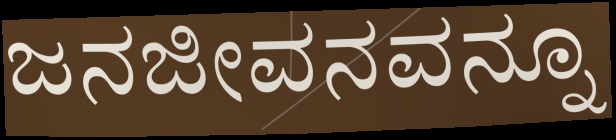
ಜನಜೀವನವನ್ನೂ